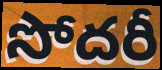
సోదరీ